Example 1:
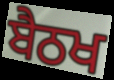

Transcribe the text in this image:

ਬੈਠਖ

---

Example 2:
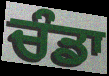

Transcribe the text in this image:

ਚੰਡਾ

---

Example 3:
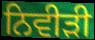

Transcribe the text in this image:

ਨਿਵੀੜੀ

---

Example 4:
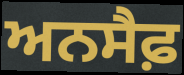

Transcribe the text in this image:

ਅਨਸੈਫ਼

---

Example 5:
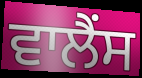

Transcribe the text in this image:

ਵਾਲੈਂਸ